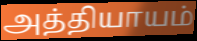
அத்தியாயம்